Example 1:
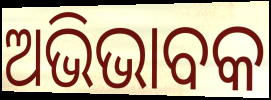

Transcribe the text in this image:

ଅଭିଭାବକ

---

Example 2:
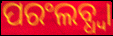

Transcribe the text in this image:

ପରଂଲବ୍ଧ୍ଵା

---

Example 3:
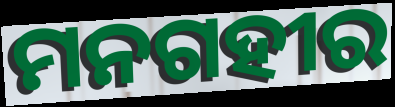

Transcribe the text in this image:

ମନଗହୀର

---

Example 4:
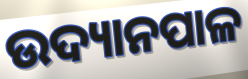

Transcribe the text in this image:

ଉଦ୍ୟାନପାଳ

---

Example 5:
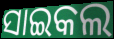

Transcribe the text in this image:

ସାଇକଲ